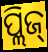
ପ୍ଲିଜ୍